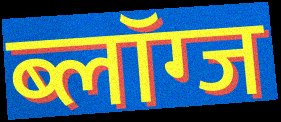
ब्लॉग्ज